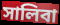
সালিবা